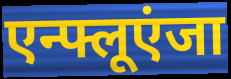
एन्फ्लूएंजा